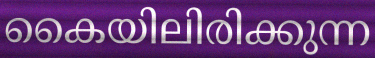
കൈയിലിരിക്കുന്ന